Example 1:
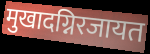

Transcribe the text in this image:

मुखादग्निरजायत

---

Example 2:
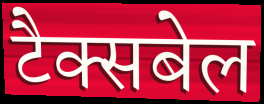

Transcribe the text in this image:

टैक्सबेल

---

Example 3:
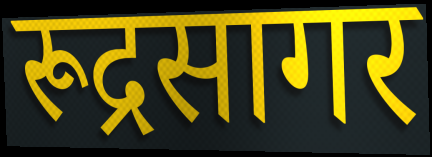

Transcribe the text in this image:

रूद्रसागर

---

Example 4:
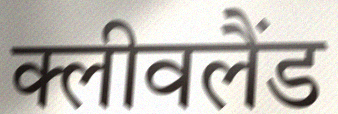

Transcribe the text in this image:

क्लीवलैंड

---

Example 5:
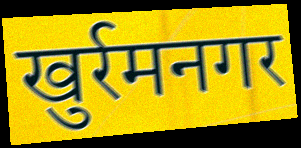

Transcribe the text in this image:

खुर्रमनगर